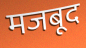
मजबूद